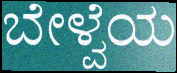
ಬೇಳ್ವೆಯ